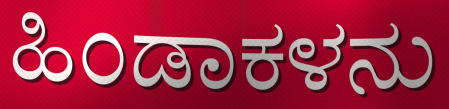
ಹಿಂಡಾಕಳನು